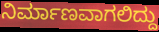
ನಿರ್ಮಾಣವಾಗಲಿದ್ದು